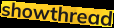
showthread